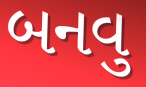
બનવુ